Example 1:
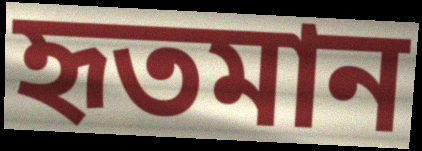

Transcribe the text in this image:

হৃতমান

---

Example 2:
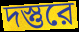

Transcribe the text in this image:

দস্তুরে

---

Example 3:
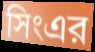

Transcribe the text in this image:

সিংএর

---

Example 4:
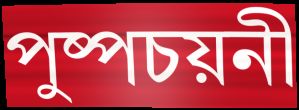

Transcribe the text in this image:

পুষ্পচয়নী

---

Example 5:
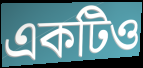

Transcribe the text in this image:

একটিও